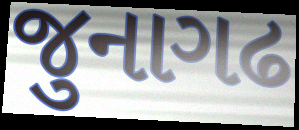
જુનાગઢ